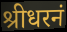
श्रीधरनं